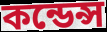
কন্ডেন্স